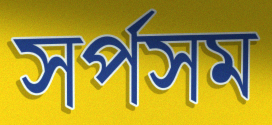
সর্পসম